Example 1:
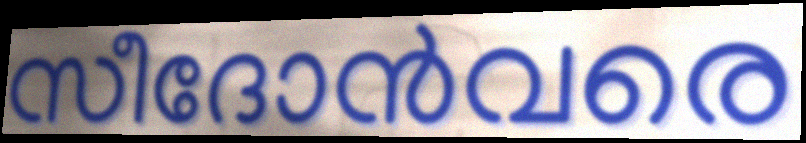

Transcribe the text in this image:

സീദോൻവരെ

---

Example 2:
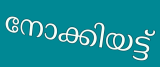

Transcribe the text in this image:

നോക്കിയട്ട്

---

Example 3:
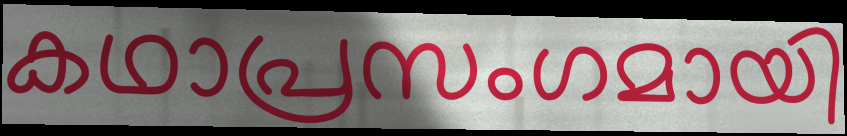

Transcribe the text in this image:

കഥാപ്രസംഗമായി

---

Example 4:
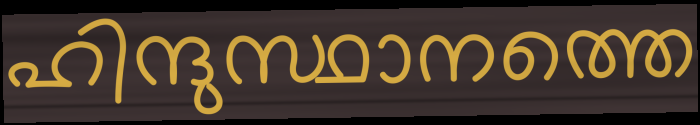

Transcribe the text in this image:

ഹിന്ദുസ്ഥാനത്തെ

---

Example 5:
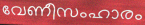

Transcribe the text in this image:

വേണീസംഹാരം